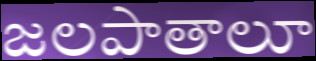
జలపాతాలూ